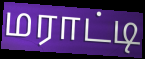
மராட்டி